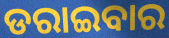
ଡରାଇବାର